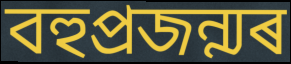
বহুপ্ৰজন্মৰ